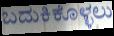
ಬದುಕಿಕೊಳ್ಳಲು